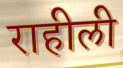
राहीली